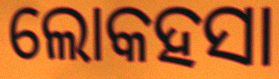
ଲୋକହସା